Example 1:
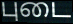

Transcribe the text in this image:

புடை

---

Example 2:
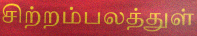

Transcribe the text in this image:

சிற்றம்பலத்துள்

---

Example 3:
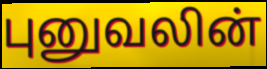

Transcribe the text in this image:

புனுவலின்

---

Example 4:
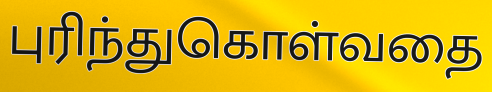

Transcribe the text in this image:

புரிந்துகொள்வதை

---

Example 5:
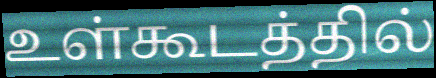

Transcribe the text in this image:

உள்கூடத்தில்